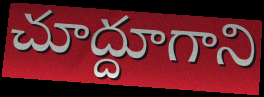
చూద్దూగాని